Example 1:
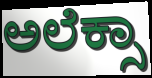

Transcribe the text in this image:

ಅಲೆಕ್ಸಾ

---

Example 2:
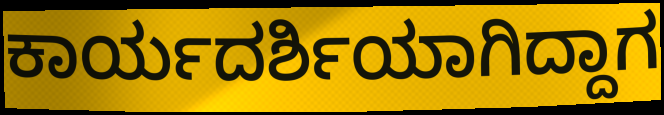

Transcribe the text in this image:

ಕಾರ್ಯದರ್ಶಿಯಾಗಿದ್ದಾಗ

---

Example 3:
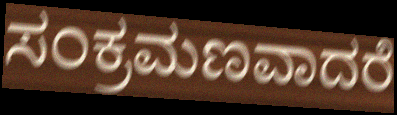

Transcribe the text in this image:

ಸಂಕ್ರಮಣವಾದರೆ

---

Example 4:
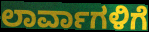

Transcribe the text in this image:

ಲಾರ್ವಾಗಳಿಗೆ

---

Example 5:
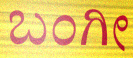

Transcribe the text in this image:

ಬಂಗೀ